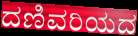
ದಣಿವರಿಯದ